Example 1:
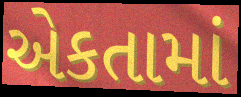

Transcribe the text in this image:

એકતામાં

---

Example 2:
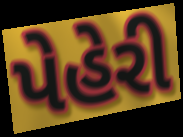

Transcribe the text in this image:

પેહેરી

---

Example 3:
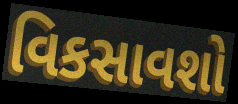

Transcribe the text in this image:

વિકસાવશો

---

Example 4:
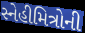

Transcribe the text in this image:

સ્નેહીમિત્રોની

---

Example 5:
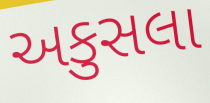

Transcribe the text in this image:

અકુસલા